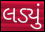
લડ્યું